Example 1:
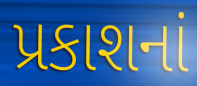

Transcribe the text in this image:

પ્રકાશનાં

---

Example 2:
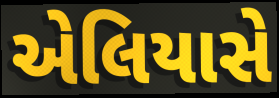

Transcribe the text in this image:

એલિયાસે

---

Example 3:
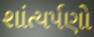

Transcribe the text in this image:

શાંત્યર્પણો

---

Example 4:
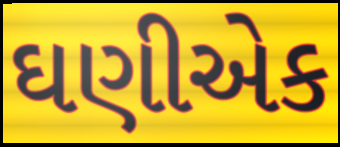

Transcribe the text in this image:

ઘણીએક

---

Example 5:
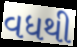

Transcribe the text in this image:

વધથી